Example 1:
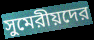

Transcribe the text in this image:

সুমেরীয়দের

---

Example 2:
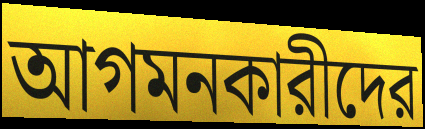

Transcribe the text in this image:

আগমনকারীদের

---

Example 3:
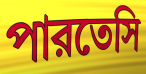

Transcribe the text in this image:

পারতেসি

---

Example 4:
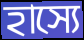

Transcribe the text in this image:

হাস্যে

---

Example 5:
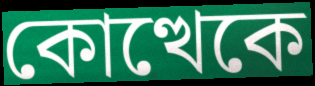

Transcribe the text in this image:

কোত্থেকে